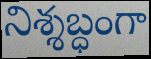
నిశ్శబ్ధంగా